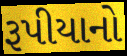
રૂપીયાનો